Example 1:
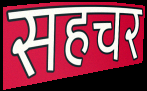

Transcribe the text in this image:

सहचर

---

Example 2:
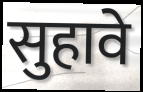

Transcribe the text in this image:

सुहावे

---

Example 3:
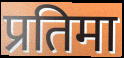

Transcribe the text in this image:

प्रतिमा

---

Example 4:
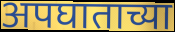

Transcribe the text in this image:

अपघाताच्या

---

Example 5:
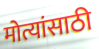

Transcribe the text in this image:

मोत्यांसाठी